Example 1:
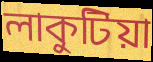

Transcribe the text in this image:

লাকুটিয়া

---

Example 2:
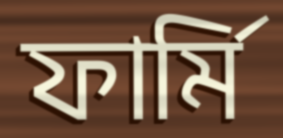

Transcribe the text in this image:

ফার্মি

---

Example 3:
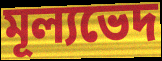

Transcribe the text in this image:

মূল্যভেদ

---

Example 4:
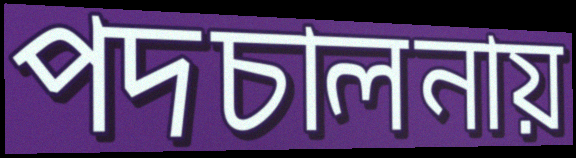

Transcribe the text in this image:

পদচালনায়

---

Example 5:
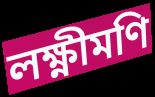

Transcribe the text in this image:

লক্ষ্ণীমণি